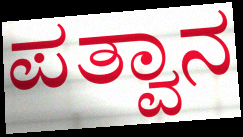
ಪತ್ವಾನ